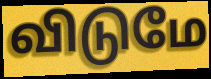
விடுமே